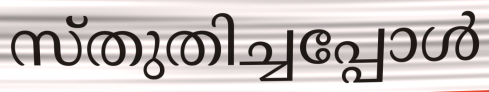
സ്തുതിച്ചപ്പോൾ